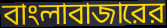
বাংলাবাজারের